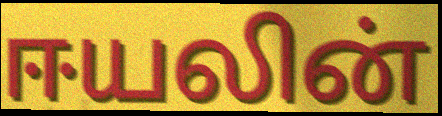
ஈயலின்